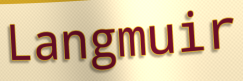
Langmuir